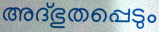
അദ്ഭുതപ്പെടും